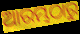
ଆରମ୍ଭଠାରୁ